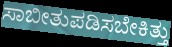
ಸಾಬೀತುಪಡಿಸಬೇಕಿತ್ತು